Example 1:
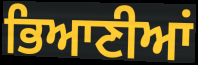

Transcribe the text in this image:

ਭਿਆਣੀਆਂ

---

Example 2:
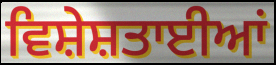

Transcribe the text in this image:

ਵਿਸ਼ੇਸ਼ਤਾਈਆਂ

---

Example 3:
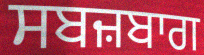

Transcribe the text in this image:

ਸਬਜ਼ਬਾਗ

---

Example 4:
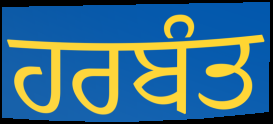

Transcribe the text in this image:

ਹਰਬੰਤ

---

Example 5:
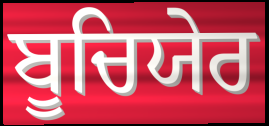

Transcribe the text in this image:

ਬੂਚਿਯੇਰ